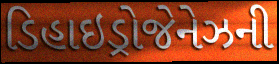
ડિહાઇડ્રોજેનેઝની